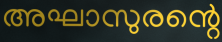
അഘാസുരന്റെ